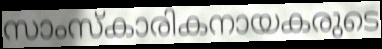
സാംസ്കാരികനായകരുടെ